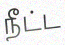
நீட்ட